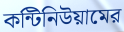
কন্টিনিউয়ামের